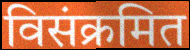
विसंक्रमित